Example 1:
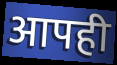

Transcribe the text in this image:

आपही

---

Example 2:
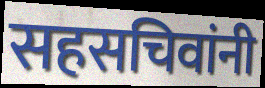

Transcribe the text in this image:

सहसचिवांनी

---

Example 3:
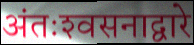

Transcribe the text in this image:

अंतःश्वसनाद्वारे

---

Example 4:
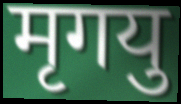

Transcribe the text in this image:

मृगयु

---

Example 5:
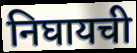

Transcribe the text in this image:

निघायची